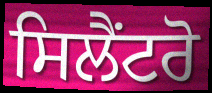
ਸਿਲੈਂਟਰੋ